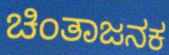
ಚಿಂತಾಜನಕ